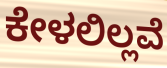
ಕೇಳಲಿಲ್ಲವೆ